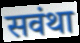
सवंथा